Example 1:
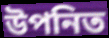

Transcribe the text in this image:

উপনিত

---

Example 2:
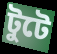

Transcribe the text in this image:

টুটে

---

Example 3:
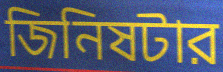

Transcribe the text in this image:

জিনিষটার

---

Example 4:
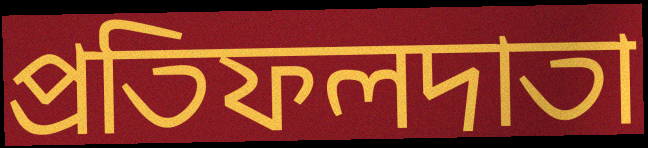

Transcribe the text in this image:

প্রতিফলদাতা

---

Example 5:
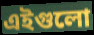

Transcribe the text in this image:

এইগুলো